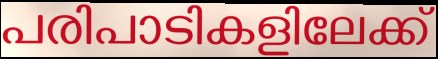
പരിപാടികളിലേക്ക്